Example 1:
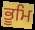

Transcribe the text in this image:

ਭੂਮਿ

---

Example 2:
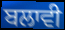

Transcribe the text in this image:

ਬਲਾਵੀ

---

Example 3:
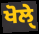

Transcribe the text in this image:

ਖੋਲੑੇ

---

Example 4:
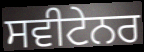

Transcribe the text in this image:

ਸਵੀਟੇਨਰ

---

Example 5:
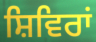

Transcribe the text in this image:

ਸ਼ਿਵਿਰਾਂ